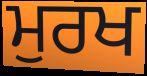
ਮੁਰਖ